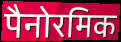
पैनोरमिक